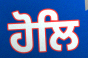
ਹੋਲਿ